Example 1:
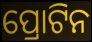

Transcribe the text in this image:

ପ୍ରୋଟିନ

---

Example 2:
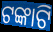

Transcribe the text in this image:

ଟଙ୍କାଟି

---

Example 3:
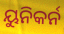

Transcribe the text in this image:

ୟୁନିକର୍ନ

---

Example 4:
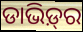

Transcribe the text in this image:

ଡାଭିଡ଼୍‍ର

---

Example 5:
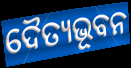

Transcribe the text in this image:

ଦୈତ୍ୟଭୂବନ